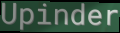
Upinder